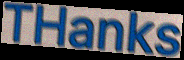
THanks